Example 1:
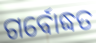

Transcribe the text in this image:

ଗର୍ବୋଦ୍ଧତ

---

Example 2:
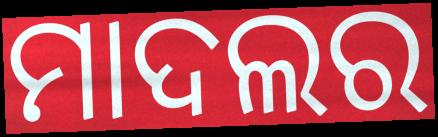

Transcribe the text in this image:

ମାଦଲର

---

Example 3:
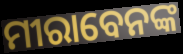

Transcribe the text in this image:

ମୀରାବେନଙ୍କ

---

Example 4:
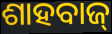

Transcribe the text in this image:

ଶାହବାଜ୍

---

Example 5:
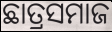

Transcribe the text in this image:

ଛାତ୍ରସମାଜ